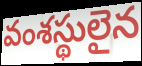
వంశస్థులైన